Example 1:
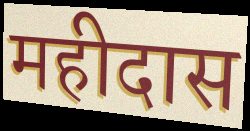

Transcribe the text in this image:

महीदास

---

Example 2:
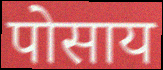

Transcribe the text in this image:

पोसाय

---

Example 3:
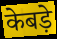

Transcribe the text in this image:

केबड़े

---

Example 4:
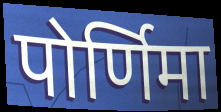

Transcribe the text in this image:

पोर्णिमा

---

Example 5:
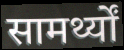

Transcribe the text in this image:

सामर्थ्यों